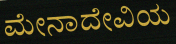
ಮೇನಾದೇವಿಯ